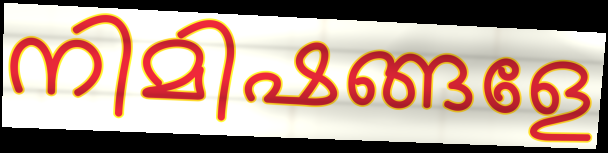
നിമിഷങ്ങളേ